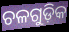
ଚଳଗୁଡ଼ିକ